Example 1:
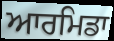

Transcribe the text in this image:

ਆਰਮਿਡਾ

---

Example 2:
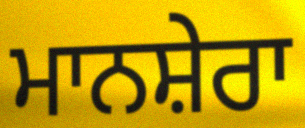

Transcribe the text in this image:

ਮਾਨਸ਼ੇਰਾ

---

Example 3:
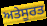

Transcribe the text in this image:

ਅਤੇਸੂਰਤ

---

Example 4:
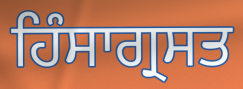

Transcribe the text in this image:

ਹਿੰਸਾਗ੍ਰਸਤ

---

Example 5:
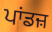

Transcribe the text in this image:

ਪਾਂਡਜ਼